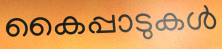
കൈപ്പാടുകൾ